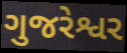
ગુજરેશ્વર